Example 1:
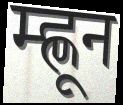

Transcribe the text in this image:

म्ह्णून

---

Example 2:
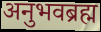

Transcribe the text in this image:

अनुभवब्रह्म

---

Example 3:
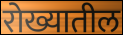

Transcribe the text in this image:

रोख्यातील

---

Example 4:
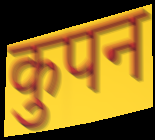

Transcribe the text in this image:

कुपन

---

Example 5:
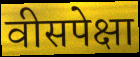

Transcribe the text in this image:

वीसपेक्षा